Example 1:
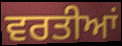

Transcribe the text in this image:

ਵਰਤੀਆਂ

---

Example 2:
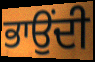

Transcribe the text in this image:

ਭਾਉਂਦੀ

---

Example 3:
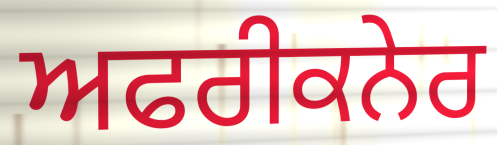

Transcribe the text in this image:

ਅਫਰੀਕਨੇਰ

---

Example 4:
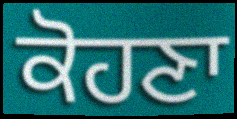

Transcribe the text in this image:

ਕੋਹਣਾ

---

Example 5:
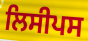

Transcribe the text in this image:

ਲਿਸੀਪਸ